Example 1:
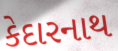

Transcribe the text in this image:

કેદારનાથ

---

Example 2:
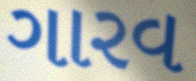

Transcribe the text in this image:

ગારવ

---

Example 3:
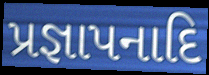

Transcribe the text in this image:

પ્રજ્ઞાપનાદિ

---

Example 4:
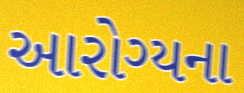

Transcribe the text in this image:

આરોગ્યના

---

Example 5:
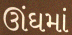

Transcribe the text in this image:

ઊંઘમાં